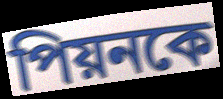
পিয়নকে